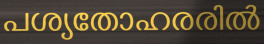
പശ്യതോഹരരിൽ